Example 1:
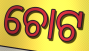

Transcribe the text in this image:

ଚୋଟ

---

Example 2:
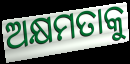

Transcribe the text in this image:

ଅକ୍ଷମତାକୁ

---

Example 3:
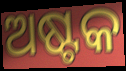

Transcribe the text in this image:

ଅଷ୍ଟକ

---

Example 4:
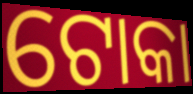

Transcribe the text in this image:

ଟୋକା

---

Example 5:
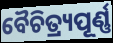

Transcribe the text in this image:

ବୈଚିତ୍ର୍ୟପୂର୍ଣ୍ଣ